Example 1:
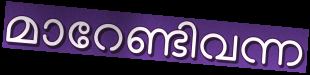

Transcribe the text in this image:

മാറേണ്ടിവന്ന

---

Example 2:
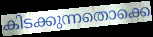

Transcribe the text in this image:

കിടക്കുന്നതൊക്കെ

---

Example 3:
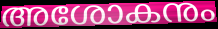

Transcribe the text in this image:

അശോകനും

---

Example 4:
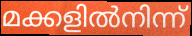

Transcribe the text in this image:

മക്കളിൽനിന്ന്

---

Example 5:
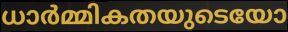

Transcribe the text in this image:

ധാർമ്മികതയുടെയോ